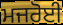
ਮਜਰੋਈ